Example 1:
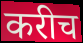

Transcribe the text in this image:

करीच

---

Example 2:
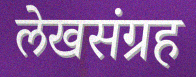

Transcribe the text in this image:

लेखसंग्रह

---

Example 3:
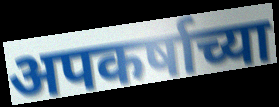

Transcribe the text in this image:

अपकर्षाच्या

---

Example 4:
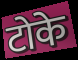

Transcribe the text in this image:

टोके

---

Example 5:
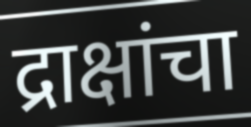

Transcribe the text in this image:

द्राक्षांचा